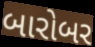
બારોબર